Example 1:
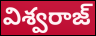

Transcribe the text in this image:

విశ్వరాజ్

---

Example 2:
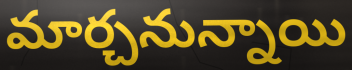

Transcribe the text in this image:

మార్చనున్నాయి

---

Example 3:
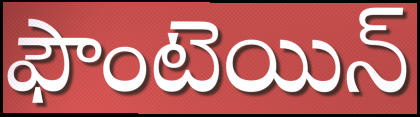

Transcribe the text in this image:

ఫౌంటెయిన్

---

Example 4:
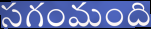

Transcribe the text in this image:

సగంమంది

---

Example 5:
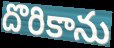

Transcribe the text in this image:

దొరికాను